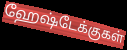
ஹேஷ்டேக்குகள்